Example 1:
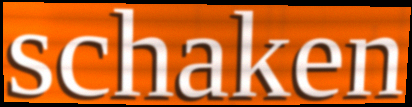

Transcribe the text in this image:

schaken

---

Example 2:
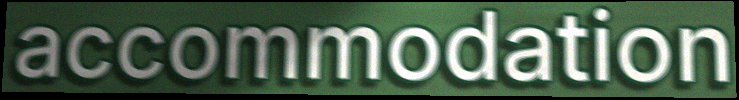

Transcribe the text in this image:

accommodation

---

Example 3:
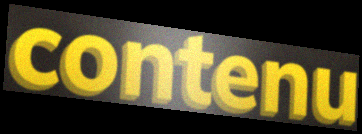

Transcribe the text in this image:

contenu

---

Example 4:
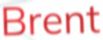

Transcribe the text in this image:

Brent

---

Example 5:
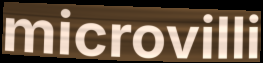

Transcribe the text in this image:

microvilli